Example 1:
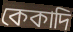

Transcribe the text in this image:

কেকাদি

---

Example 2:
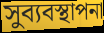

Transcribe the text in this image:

সুব্যবস্থাপনা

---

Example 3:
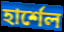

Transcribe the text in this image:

হার্শেল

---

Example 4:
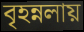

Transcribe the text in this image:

বৃহন্নলায়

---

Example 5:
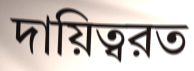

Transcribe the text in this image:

দায়িত্বরত